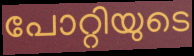
പോറ്റിയുടെ